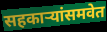
सहकाऱ्यांसमवेत